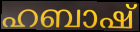
ഹബാഷ്